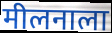
मीलनाला